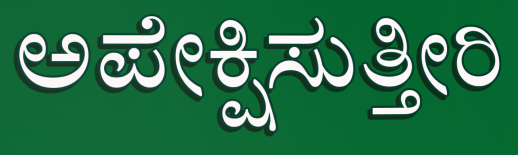
ಅಪೇಕ್ಷಿಸುತ್ತೀರಿ